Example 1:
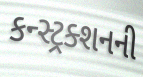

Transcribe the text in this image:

કન્સ્ટ્રક્શનની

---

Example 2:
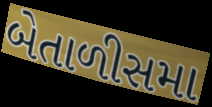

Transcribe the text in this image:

બેતાળીસમા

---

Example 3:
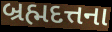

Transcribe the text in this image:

બ્રહ્મદત્તના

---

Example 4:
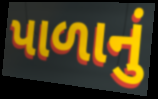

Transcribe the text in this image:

પાળાનું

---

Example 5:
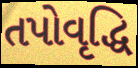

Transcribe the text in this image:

તપોવૃદ્ધિ